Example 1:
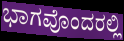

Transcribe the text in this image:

ಭಾಗವೊಂದರಲ್ಲಿ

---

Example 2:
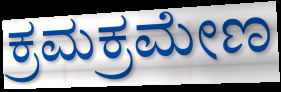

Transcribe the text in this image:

ಕ್ರಮಕ್ರಮೇಣ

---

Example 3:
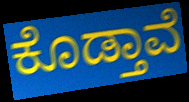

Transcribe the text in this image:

ಕೊಡ್ತಾವೆ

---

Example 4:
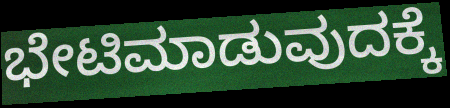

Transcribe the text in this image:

ಭೇಟಿಮಾಡುವುದಕ್ಕೆ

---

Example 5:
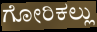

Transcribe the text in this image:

ಗೋರಿಕಲ್ಲು